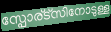
സ്പോര്ട്സിനോടുള്ള